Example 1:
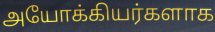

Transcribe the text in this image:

அயோக்கியர்களாக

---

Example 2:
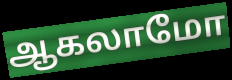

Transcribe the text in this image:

ஆகலாமோ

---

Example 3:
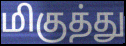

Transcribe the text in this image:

மிகுத்து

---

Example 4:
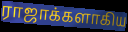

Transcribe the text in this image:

ராஜாக்களாகிய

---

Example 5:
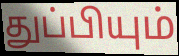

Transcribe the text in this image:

துப்பியும்